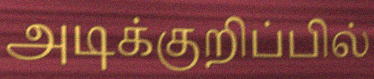
அடிக்குறிப்பில்